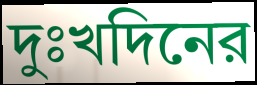
দুঃখদিনের